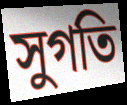
সুগতি